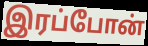
இரப்போன்